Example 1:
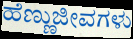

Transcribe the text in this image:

ಹೆಣ್ಣುಜೀವಗಳು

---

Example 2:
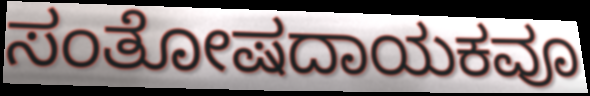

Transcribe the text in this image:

ಸಂತೋಷದಾಯಕವೂ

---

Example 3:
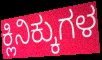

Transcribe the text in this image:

ಕ್ಲಿನಿಕ್ಕುಗಳ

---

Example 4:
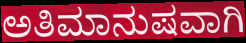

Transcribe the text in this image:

ಅತಿಮಾನುಷವಾಗಿ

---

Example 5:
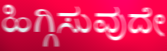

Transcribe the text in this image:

ಹಿಗ್ಗಿಸುವುದೇ